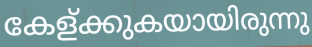
കേള്ക്കുകയായിരുന്നു